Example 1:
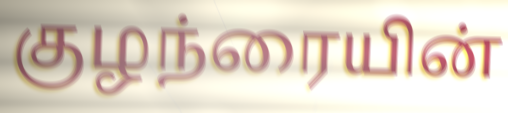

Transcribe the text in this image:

குழந்ரையின்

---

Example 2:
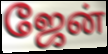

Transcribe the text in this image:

ஜேன்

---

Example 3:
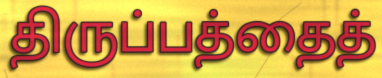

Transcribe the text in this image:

திருப்பத்தைத்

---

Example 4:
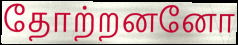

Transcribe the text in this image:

தோற்றனனோ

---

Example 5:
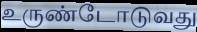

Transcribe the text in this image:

உருண்டோடுவது